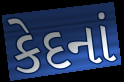
કેદનાં